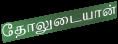
தோலுடையான்